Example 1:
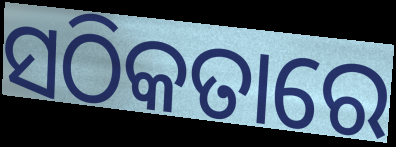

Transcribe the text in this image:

ସଠିକତାରେ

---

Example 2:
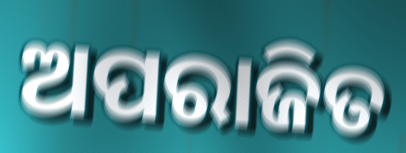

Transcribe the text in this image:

ଅପରାଜିତ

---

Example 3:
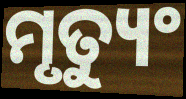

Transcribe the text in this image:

ମୃତ୍ୟୁଂ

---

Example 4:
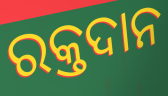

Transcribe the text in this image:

ରକ୍ତଦାନ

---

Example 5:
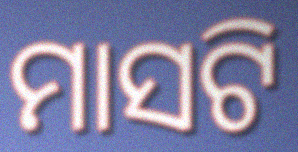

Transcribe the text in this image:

ମାସଟି